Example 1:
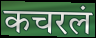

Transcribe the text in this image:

कचरलं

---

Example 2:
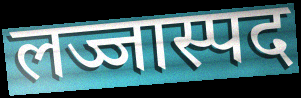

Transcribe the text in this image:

लज्जास्पद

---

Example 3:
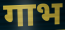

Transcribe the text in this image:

गाभ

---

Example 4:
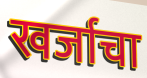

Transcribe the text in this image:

खर्जाचा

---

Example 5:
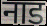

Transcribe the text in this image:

नाड